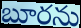
బూరను